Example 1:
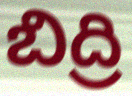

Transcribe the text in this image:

బిద్రి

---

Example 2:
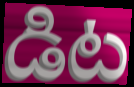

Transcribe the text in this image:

డిట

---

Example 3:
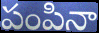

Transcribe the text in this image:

పంపినా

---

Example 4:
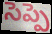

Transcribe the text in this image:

సెప్పె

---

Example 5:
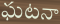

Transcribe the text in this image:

ఘటనా